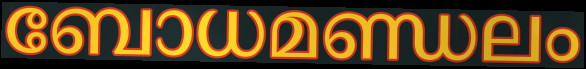
ബോധമണ്ഡലം